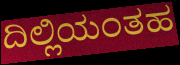
ದಿಲ್ಲಿಯಂತಹ